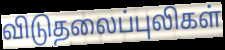
விடுதலைப்புலிகள்